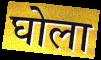
घोला